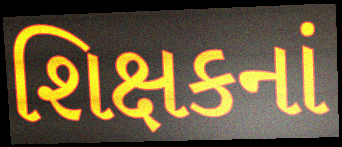
શિક્ષકનાં